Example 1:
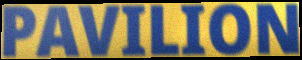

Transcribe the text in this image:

PAVILION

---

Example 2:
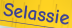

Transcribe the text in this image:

Selassie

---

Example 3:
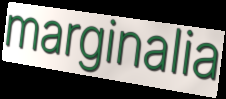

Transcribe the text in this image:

marginalia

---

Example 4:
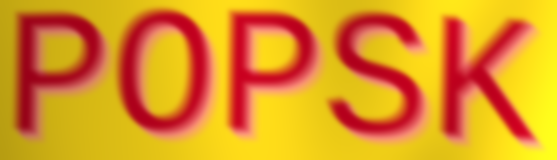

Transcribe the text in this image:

POPSK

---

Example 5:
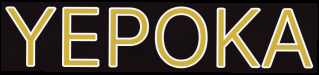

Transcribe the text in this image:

YEPOKA